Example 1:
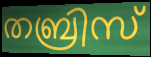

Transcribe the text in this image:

തബ്രിസ്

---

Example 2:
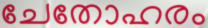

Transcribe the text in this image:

ചേതോഹരം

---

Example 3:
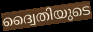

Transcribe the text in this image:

ദ്വൈതിയുടെ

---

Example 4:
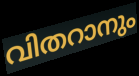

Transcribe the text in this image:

വിതറാനും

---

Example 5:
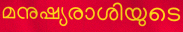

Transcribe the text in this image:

മനുഷ്യരാശിയുടെ